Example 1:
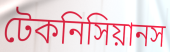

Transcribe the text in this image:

টেকনিসিয়ানস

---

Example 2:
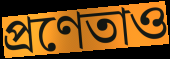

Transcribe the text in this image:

প্রণেতাও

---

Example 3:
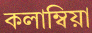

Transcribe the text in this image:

কলাম্বিয়া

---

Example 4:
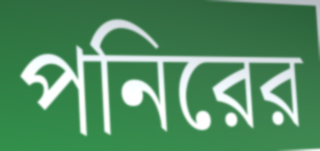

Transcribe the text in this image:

পনিরের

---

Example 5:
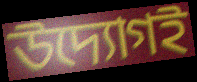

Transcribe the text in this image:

উদ্যোগই